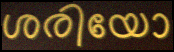
ശരിയോ